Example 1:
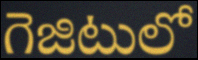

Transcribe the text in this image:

గెజిటులో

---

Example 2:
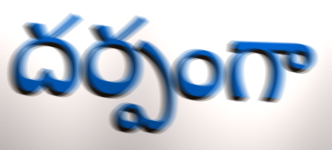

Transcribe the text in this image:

దర్పంగా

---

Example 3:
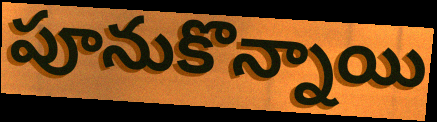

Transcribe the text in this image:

పూనుకొన్నాయి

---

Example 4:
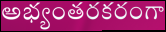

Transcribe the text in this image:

అభ్యంతరకరంగా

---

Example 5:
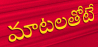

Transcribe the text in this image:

మాటలతోటే